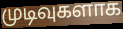
முடிவுகளாக